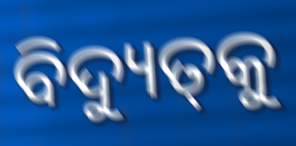
ବିଦ୍ୟୁତ୍‌କୁ